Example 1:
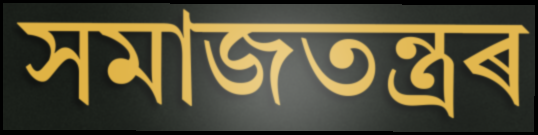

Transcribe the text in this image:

সমাজতন্ত্ৰৰ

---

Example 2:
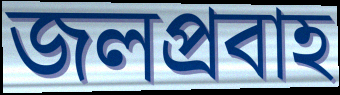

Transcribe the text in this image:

জলপ্ৰবাহ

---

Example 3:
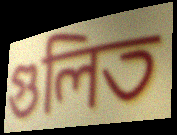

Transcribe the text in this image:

গুলিত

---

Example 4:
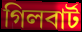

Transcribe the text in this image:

গিলবাৰ্ট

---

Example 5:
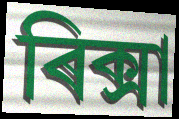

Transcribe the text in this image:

ৰিক্সা